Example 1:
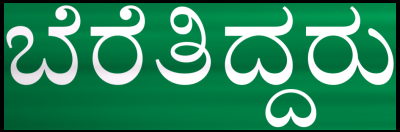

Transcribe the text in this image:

ಬೆರೆತಿದ್ದರು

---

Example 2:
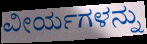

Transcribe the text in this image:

ವೀರ್ಯಗಳನ್ನು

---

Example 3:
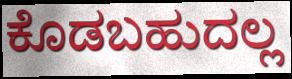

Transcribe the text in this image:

ಕೊಡಬಹುದಲ್ಲ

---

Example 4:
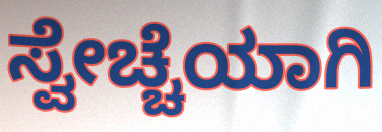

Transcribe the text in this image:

ಸ್ವೇಚ್ಚೆಯಾಗಿ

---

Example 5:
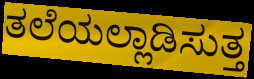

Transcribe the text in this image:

ತಲೆಯಲ್ಲಾಡಿಸುತ್ತ